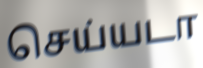
செய்யடா